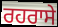
ਰਹਰਾਸੇ